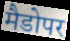
मैडोपर